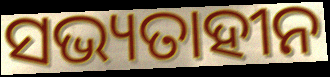
ସଭ୍ୟତାହୀନ